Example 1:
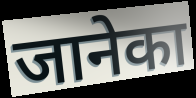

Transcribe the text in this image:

जानेका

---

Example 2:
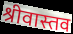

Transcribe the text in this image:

श्रीवास्‍तव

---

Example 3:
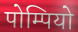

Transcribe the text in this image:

पोम्पियो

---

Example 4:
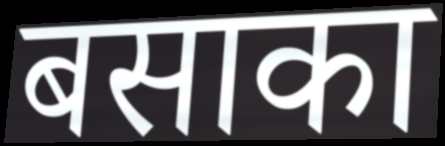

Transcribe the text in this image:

बसाका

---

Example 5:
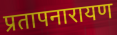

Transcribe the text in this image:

प्रतापनारायण